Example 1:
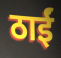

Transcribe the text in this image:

ठाईं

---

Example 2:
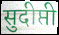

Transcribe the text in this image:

सुदीप्ती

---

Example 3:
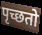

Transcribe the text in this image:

पृच्छतो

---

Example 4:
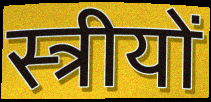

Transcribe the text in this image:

स्त्रीयों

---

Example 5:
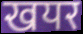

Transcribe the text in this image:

खयर